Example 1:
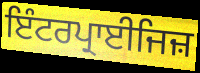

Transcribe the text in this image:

ਇੰਟਰਪ੍ਰਾਈਜਿਜ਼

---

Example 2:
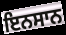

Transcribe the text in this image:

ਇਨਸਾਨ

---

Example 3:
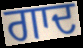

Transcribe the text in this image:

ਗਾਦ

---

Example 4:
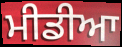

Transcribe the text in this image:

ਮੀਡੀਆ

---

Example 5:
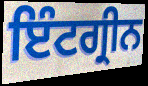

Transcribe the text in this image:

ਇੰਟਗ੍ਰੀਨ